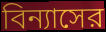
বিন্যাসের